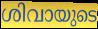
ശിവായുടെ